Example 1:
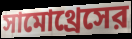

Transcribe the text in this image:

সামোথ্রেসের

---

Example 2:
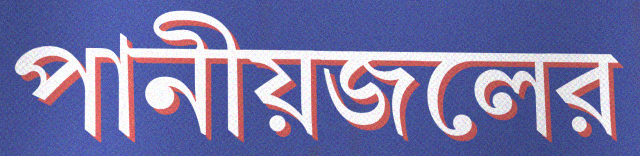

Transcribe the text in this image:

পানীয়জলের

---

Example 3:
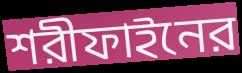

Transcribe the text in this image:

শরীফাইনের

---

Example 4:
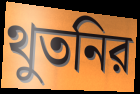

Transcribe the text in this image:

থুতনির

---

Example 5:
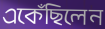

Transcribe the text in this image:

একেঁছিলেন